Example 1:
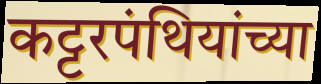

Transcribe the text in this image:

कट्टरपंथियांच्या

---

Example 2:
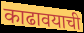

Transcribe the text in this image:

काढावयाची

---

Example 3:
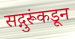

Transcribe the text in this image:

सद्गुरूंकडून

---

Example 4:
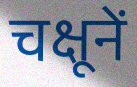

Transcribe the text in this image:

चक्षूनें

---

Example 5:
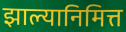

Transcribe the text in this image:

झाल्यानिमित्त